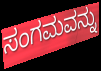
ಸಂಗಮವನ್ನು